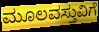
ಮೂಲವಸ್ತುವಿಗೆ